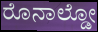
ರೊನಾಲ್ಡೋ